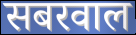
सबरवाल